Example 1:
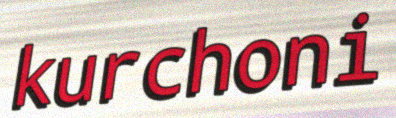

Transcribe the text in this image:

kurchoni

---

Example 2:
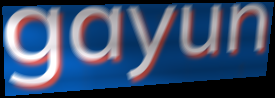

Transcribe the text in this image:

gayun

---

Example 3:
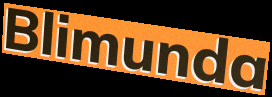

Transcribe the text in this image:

Blimunda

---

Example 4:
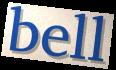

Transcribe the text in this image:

bell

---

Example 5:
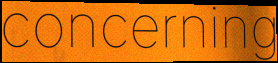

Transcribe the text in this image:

concerning